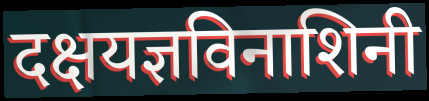
दक्षयज्ञविनाशिनी